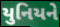
યુનિયને